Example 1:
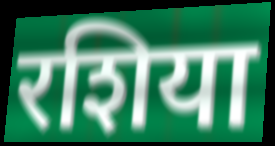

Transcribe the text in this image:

रशिया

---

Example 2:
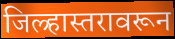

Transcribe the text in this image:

जिल्हास्तरावरून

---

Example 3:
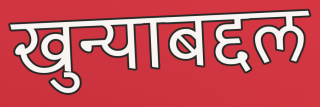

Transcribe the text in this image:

खुन्याबद्दल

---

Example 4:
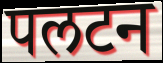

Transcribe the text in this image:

पलटन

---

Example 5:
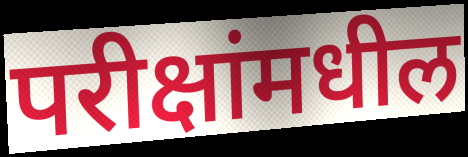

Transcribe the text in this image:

परीक्षांमधील